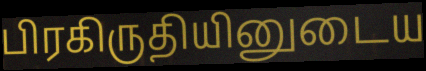
பிரகிருதியினுடைய